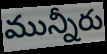
మున్నీరు